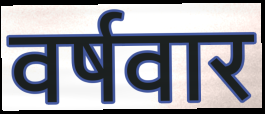
वर्षवार